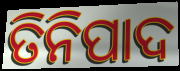
ତିନିପାଦ